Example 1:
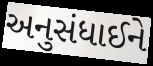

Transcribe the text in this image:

અનુસંધાઈને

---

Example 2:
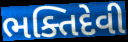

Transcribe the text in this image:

ભક્તિદેવી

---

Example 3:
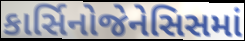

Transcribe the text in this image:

કાર્સિનોજેનેસિસમાં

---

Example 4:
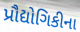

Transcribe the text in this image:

પ્રૌદ્યોગિકીના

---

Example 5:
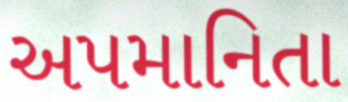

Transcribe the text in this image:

અપમાનિતા